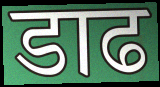
डाढ